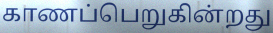
காணப்பெறுகின்றது